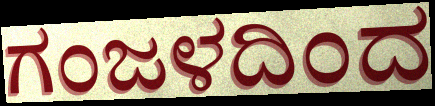
ಗಂಜಳದಿಂದ